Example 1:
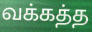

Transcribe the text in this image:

வக்கத்த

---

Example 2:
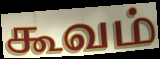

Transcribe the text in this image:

கூவம்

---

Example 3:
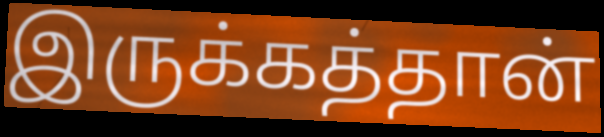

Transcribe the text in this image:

இருக்கத்தான்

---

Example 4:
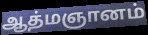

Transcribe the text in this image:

ஆத்மஞானம்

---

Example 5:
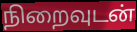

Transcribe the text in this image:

நிறைவுடன்